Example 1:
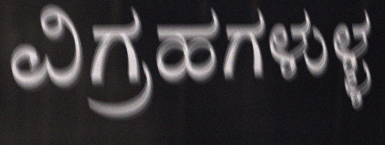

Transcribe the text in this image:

ವಿಗ್ರಹಗಳುಳ್ಳ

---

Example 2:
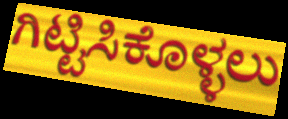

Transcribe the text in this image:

ಗಿಟ್ಟಿಸಿಕೊಳ್ಳಲು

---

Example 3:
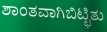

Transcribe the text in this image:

ಶಾಂತವಾಗಿಬಿಟ್ಟಿತು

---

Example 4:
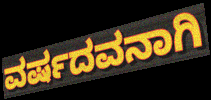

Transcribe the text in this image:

ವರ್ಷದವನಾಗಿ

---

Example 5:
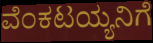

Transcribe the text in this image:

ವೆಂಕಟಯ್ಯನಿಗೆ